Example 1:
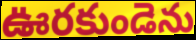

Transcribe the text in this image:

ఊరకుండెను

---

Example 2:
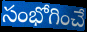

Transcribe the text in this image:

సంభోగించే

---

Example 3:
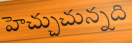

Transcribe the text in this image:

హెచ్చుచున్నది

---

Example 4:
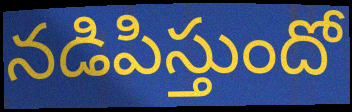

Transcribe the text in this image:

నడిపిస్తుందో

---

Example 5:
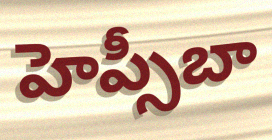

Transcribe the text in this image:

హెప్సీబా